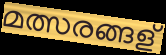
മത്സരങ്ങള്